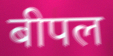
बीपल